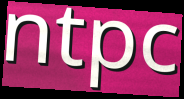
ntpc